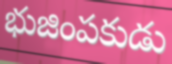
భుజింపకుడు